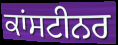
ਕਾਂਸਟੀਨਰ